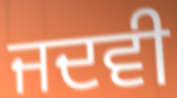
ਜਦਵੀ